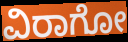
ವಿರಾಗೋ